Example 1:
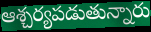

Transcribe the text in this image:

ఆశ్చర్యపడుతున్నారు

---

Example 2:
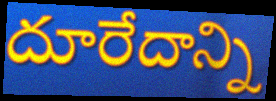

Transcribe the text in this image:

దూరేదాన్ని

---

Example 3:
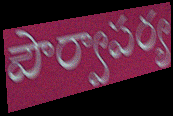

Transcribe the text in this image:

పౌర్వాపర్య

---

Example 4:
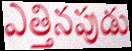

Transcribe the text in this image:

ఎత్తినపుడు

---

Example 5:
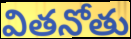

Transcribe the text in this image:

వితనోతు